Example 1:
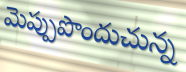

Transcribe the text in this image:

మెప్పుపొందుచున్న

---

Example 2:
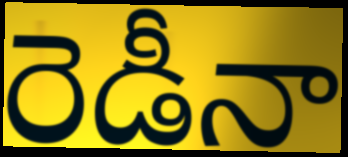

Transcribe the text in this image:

రెడీనా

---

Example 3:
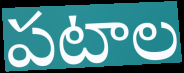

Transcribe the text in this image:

పటాల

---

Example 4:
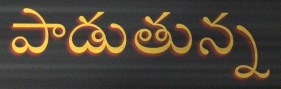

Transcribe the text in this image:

పాడుతున్న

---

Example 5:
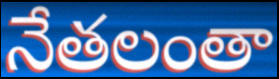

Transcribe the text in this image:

నేతలంతా